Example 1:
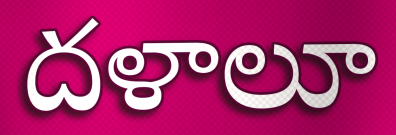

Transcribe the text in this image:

దళాలూ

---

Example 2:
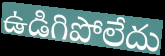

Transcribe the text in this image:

ఉడిగిపోలేదు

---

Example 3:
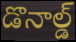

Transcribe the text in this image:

డొనాల్డ్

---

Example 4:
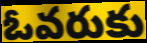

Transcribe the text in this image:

ఓవరుకు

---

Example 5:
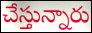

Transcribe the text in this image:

చేస్తున్నారు